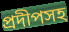
প্রদীপসহ